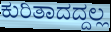
ಕುರಿತಾದದ್ದಲ್ಲ